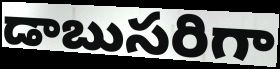
డాబుసరిగా